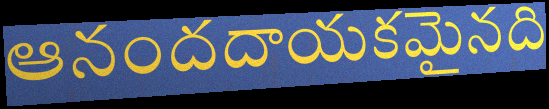
ఆనందదాయకమైనది